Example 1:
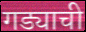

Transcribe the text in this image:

गड्याची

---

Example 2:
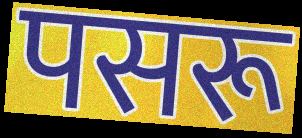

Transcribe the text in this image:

पसरू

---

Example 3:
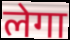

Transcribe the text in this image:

लेगा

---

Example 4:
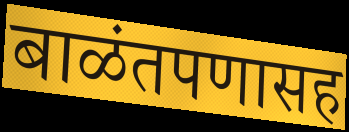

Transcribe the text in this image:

बाळंतपणासह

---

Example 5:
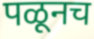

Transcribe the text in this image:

पळूनच